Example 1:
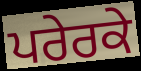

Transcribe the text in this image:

ਪਰੇਰਕੇ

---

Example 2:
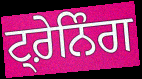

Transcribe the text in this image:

ਟ੍ਰ਼ੇਨਿੰਗ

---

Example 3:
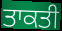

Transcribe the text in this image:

ਤਾਕਤੀ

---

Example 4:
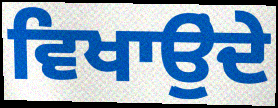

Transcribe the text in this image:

ਵਿਖਾਉੁਂਦੇ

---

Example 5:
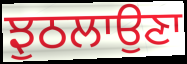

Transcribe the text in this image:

ਝੁਠਲਾਉਣਾ